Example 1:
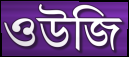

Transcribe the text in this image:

ওউজি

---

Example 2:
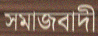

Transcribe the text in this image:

সমাজবাদী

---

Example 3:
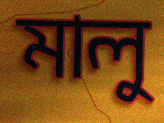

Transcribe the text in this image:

মালু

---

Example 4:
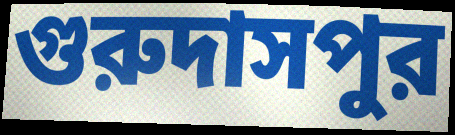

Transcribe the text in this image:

গুরুদাসপুর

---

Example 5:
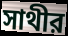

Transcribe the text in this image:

সাথীর